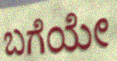
ಬಗೆಯೇ